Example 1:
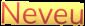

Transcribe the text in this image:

Neveu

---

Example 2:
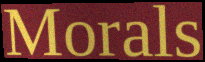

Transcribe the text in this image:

Morals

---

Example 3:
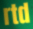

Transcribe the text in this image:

rtd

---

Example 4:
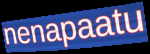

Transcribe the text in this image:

nenapaatu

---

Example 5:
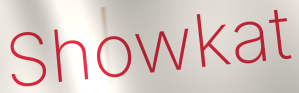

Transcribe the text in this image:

Showkat